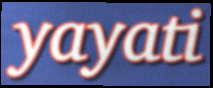
yayati